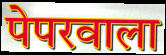
पेपरवाला